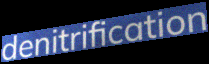
denitrification